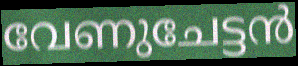
വേണുചേട്ടൻ